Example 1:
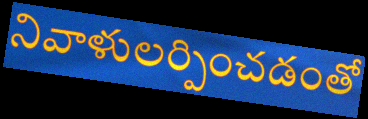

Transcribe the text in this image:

నివాళులర్పించడంతో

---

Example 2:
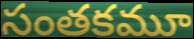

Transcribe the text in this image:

సంతకమూ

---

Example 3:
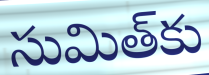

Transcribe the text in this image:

సుమిత్‌కు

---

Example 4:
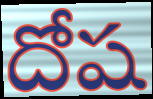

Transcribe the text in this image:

దోష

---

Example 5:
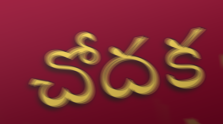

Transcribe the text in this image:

చోదక